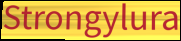
Strongylura